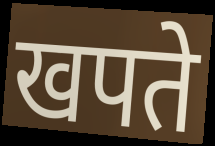
खपते